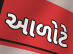
આળોટે